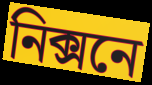
নিক্সনে